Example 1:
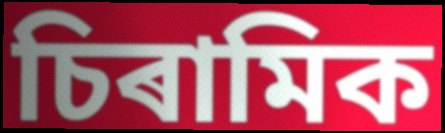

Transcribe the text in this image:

চিৰামিক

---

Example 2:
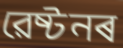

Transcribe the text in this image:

ৱেষ্টনৰ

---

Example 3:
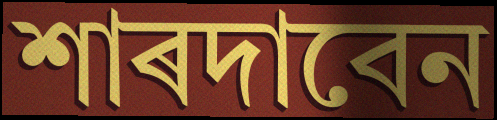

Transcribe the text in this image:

শাৰদাবেন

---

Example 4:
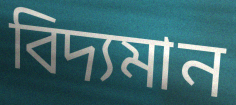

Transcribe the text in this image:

বিদ্যমান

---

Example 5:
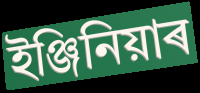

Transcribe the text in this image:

ইঞ্জিনিয়াৰ